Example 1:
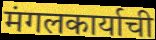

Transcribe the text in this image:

मंगलकार्याची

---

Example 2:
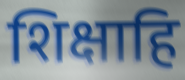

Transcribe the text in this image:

शिक्षाहि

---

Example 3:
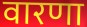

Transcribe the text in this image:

वारणा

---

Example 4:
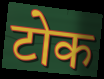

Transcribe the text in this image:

टोक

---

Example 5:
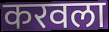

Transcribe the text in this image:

करवला